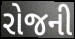
રોજની